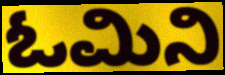
ಓಮಿನಿ